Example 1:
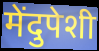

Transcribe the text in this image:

मेंदुपेशी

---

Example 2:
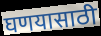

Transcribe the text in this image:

घणयासाठी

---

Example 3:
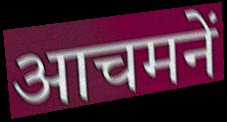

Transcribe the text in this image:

आचमनें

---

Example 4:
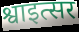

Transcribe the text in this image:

श्वाइत्सर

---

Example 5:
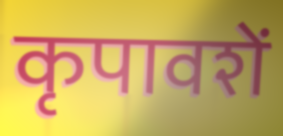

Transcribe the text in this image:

कृपावशें